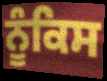
ਨੂੰਕਿਸ